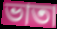
ভাতা